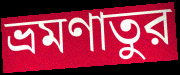
ভ্রমণাতুর